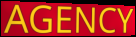
AGENCY